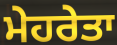
ਮੇਹਰੇਤਾ